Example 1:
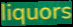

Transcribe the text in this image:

liquors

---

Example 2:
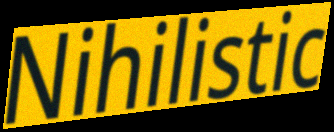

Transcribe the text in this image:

Nihilistic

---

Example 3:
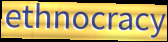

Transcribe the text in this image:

ethnocracy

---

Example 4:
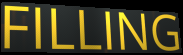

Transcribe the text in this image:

FILLING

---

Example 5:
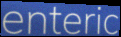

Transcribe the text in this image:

enteric